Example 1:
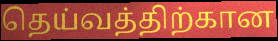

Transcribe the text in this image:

தெய்வத்திற்கான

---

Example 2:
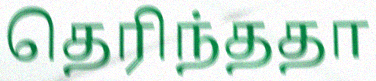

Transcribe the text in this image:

தெரிந்ததா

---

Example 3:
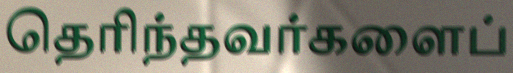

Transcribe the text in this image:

தெரிந்தவர்களைப்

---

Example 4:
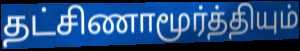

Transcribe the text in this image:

தட்சிணாமூர்த்தியும்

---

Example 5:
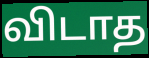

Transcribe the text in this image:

விடாத